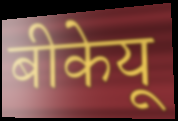
बीकेयू